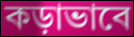
কড়াভাবে